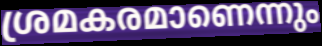
ശ്രമകരമാണെന്നും